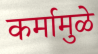
कर्मामुळे